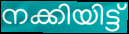
നക്കിയിട്ട്